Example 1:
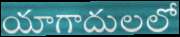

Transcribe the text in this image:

యాగాదులలో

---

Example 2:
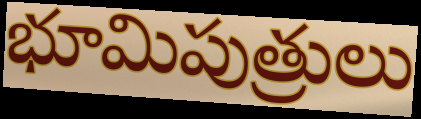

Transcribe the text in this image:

భూమిపుత్రులు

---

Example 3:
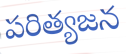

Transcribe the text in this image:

పరిత్యజన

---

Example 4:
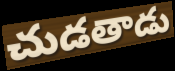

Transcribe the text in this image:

చుడతాడు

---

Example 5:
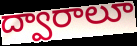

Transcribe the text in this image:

ద్వారాలూ